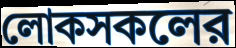
লোকসকলের